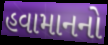
હવામાનનો